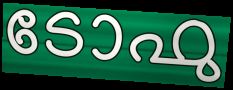
ടോഫു